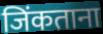
जिंकताना